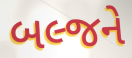
બલ્જને